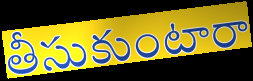
తీసుకుంటారా